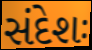
સંદેશઃ